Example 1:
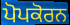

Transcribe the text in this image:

ਪੋਪਕੋਰਨ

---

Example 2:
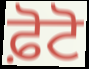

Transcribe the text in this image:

ਫ਼ੋਟੋ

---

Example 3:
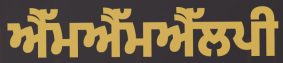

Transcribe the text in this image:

ਐੱਮਐੱਮਐੱਲਪੀ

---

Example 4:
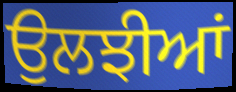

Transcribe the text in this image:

ਉਲਝੀਆਂ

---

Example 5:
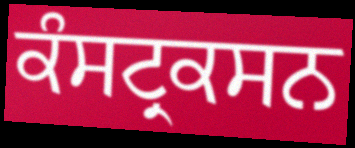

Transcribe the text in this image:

ਕੰਸਟ੍ਰਕਸਨ